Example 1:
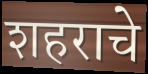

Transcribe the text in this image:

शहराचे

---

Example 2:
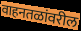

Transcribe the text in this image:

वाहनतळांवरील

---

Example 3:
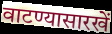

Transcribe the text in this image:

वाटण्यासारखें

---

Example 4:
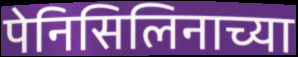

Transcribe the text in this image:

पेनिसिलिनाच्या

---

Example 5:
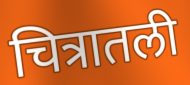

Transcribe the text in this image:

चित्रातली